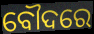
ବୌଦରେ